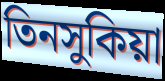
তিনসুকিয়া